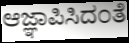
ಆಜ್ಞಾಪಿಸಿದಂತೆ